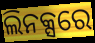
ଲିନକ୍ସରେ